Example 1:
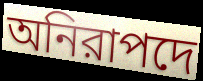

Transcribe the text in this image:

অনিরাপদে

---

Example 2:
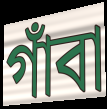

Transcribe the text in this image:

গাঁবা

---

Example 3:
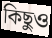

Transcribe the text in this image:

কিছুও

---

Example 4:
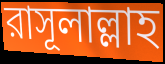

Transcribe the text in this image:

রাসূলাল্লাহ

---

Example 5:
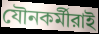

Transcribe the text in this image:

যৌনকর্মীরাই